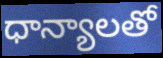
ధాన్యాలతో